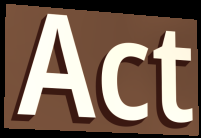
Act